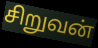
சிறுவன்